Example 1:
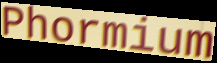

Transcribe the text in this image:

Phormium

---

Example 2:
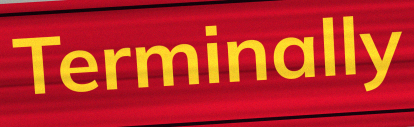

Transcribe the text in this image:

Terminally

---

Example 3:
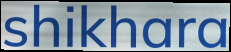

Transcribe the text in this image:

shikhara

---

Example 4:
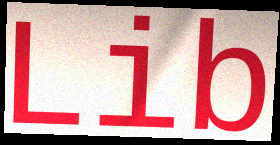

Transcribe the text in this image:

Lib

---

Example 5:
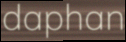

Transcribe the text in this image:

daphan